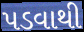
પડવાથી